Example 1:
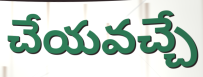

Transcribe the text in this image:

చేయవచ్చే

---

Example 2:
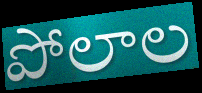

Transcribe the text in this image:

పోలాల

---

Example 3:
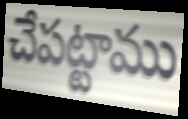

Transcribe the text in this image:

చేపట్టాము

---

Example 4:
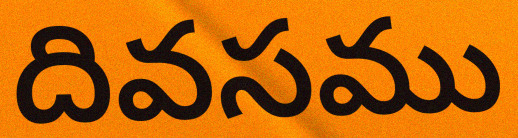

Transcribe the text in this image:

దివసము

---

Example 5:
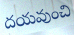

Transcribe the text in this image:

దయవుంచి